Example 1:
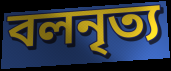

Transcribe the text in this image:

বলনৃত্য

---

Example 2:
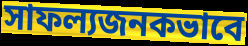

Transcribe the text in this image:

সাফল্যজনকভাবে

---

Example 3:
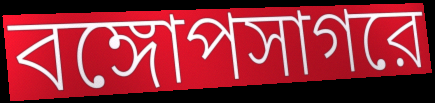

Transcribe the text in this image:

বঙ্গোপসাগরে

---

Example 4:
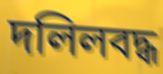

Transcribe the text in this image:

দলিলবদ্ধ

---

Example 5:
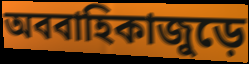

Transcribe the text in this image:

অববাহিকাজুড়ে